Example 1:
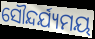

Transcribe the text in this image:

ସୌନ୍ଦର୍ଯ୍ୟମୟ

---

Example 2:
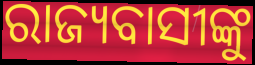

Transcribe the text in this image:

ରାଜ୍ୟବାସୀଙ୍କୁ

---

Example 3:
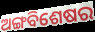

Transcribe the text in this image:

ଅଙ୍ଗବିଶେଷର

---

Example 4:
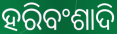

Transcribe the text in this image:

ହରିବଂଶାଦି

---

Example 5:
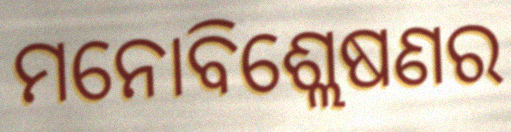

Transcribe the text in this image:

ମନୋବିଶ୍ଲେଷଣର